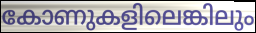
കോണുകളിലെങ്കിലും